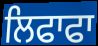
ਲਿਫਾਫਾ